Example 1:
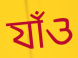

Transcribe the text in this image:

যাঁও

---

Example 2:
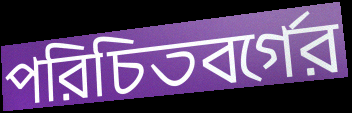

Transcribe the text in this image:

পরিচিতবর্গের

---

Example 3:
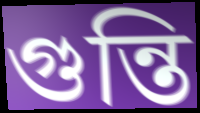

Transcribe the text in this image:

গুন্তি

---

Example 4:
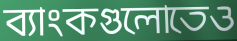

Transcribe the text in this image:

ব্যাংকগুলোতেও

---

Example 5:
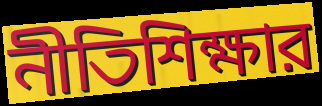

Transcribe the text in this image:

নীতিশিক্ষার